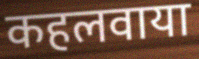
कहलवाया